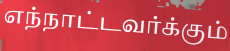
எந்நாட்டவர்க்கும்